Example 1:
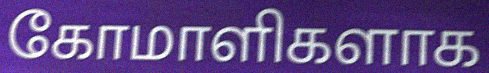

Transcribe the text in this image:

கோமாளிகளாக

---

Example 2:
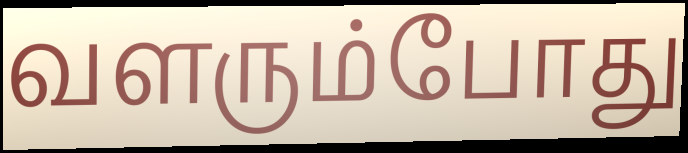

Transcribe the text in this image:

வளரும்போது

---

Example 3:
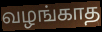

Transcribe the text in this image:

வழங்காத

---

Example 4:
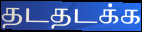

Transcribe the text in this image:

தடதடக்க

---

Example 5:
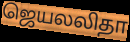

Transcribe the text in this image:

ஜெயலலிதா